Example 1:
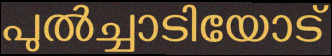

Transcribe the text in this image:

പുൽച്ചാടിയോട്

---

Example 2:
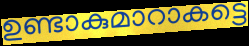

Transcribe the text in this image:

ഉണ്ടാകുമാറാകട്ടെ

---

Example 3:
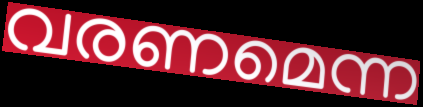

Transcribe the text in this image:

വരണമെന്ന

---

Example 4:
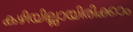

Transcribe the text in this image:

കഴിയില്ലായിരിക്കാം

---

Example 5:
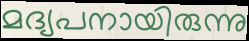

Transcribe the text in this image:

മദ്യപനായിരുന്നു